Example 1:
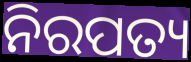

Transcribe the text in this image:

ନିରପତ୍ୟ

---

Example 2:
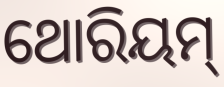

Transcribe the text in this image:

ଥୋରିୟମ୍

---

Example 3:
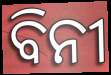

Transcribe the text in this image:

ବିନୀ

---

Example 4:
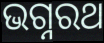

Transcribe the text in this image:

ଭଗ୍ନରଥ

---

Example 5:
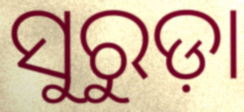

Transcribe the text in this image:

ସୁରୁଡ଼ା